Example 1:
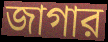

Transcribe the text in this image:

জাগার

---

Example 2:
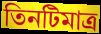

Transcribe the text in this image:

তিনটিমাত্র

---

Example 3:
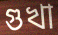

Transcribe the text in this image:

গুখা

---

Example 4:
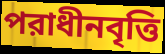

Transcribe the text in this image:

পরাধীনবৃত্তি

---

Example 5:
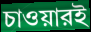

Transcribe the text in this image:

চাওয়ারই